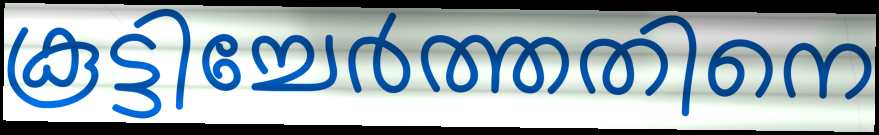
കൂട്ടിച്ചേർത്തതിനെ